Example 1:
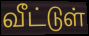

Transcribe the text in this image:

வீட்டுள்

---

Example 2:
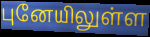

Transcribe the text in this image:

புனேயிலுள்ள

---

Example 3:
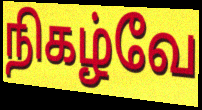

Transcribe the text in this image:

நிகழ்வே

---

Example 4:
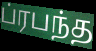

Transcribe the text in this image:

ப்ரபந்த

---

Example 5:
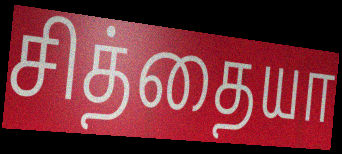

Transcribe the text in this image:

சித்தையா